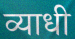
व्याधी